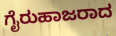
ಗೈರುಹಾಜರಾದ